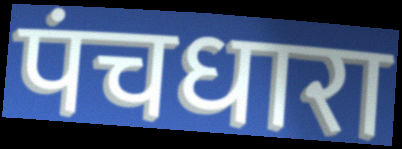
पंचधारा